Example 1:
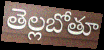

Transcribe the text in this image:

తెల్లబోతూ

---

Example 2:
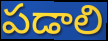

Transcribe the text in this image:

పడాలి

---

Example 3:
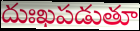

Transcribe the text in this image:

దుఃఖపడుతూ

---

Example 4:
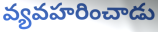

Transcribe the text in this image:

వ్యవహరించాడు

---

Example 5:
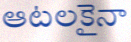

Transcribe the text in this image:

ఆటలకైనా